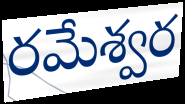
రమేశ్వర